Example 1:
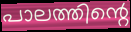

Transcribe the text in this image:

പാലത്തിന്റെ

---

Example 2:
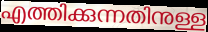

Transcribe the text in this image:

എത്തിക്കുന്നതിനുള്ള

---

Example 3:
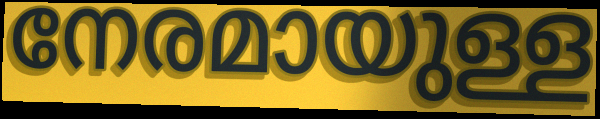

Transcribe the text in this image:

നേരമായുള്ള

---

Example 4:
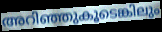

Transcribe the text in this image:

അറിഞ്ഞുകൂടെങ്കിലും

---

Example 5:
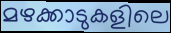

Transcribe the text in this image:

മഴക്കാടുകളിലെ